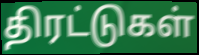
திரட்டுகள்